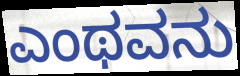
ಎಂಥವನು